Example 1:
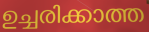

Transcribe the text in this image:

ഉച്ചരിക്കാത്ത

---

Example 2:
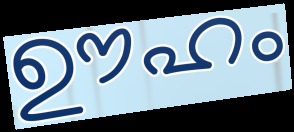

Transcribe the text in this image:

ഊഹം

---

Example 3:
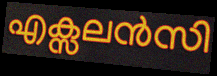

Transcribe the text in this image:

എക്സലൻസി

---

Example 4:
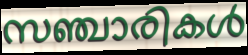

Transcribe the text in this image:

സഞ്ചാരികൾ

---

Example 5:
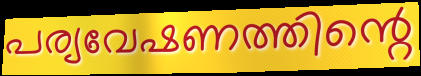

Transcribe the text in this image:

പര്യവേഷണത്തിന്റെ